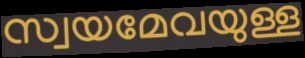
സ്വയമേവയുള്ള